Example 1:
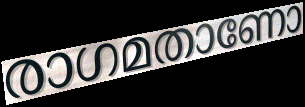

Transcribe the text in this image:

രാഗമതാണോ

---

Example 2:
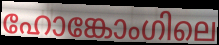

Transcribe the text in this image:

ഹോങ്കോംഗിലെ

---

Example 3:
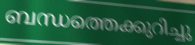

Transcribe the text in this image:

ബന്ധത്തെക്കുറിച്ചു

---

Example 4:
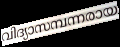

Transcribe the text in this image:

വിദ്യാസമ്പന്നരായ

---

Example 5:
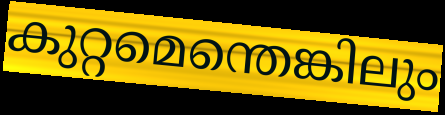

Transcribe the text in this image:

കുറ്റമെന്തെങ്കിലും